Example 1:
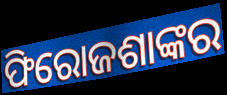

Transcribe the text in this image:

ଫିରୋଜଶାଙ୍କର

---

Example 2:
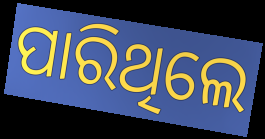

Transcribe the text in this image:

ପାରିଥିଲେ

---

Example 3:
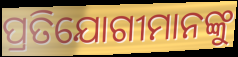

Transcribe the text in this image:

ପ୍ରତିଯୋଗୀମାନଙ୍କୁ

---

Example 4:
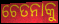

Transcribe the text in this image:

ଚେତନାକୁ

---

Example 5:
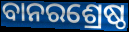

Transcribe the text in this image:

ବାନରଶ୍ରେଷ୍ଠ